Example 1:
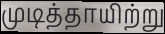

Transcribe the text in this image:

முடித்தாயிற்று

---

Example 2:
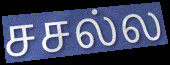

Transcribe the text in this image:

சசல்ல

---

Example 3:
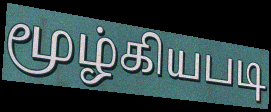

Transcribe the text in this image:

மூழ்கியபடி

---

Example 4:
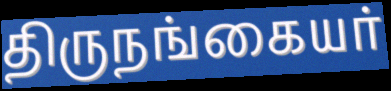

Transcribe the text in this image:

திருநங்கையர்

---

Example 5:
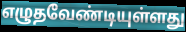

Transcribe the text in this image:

எழுதவேண்டியுள்ளது